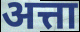
अत्ता